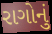
રાગોનું